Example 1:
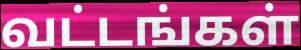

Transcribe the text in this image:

வட்டங்கள்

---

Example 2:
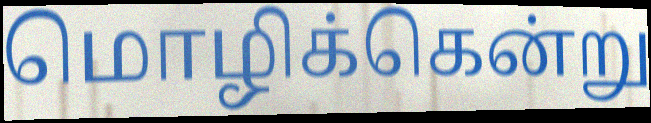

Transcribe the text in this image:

மொழிக்கென்று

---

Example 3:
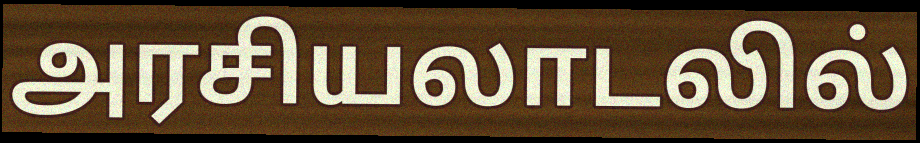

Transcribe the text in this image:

அரசியலாடலில்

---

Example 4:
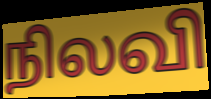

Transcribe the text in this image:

நிலவி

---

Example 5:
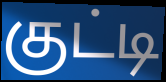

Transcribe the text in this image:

குட்டி